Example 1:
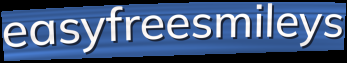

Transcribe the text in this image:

easyfreesmileys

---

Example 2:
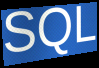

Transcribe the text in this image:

SQL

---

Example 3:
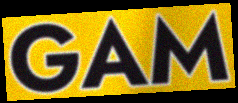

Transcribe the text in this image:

GAM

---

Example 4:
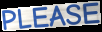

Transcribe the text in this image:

PLEASE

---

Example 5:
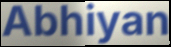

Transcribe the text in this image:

Abhiyan